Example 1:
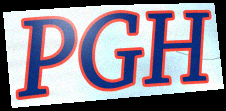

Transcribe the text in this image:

PGH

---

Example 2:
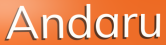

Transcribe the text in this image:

Andaru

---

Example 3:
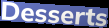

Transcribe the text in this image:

Desserts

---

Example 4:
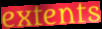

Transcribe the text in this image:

extents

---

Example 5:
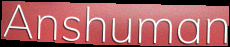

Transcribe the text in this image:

Anshuman